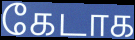
கேடாக